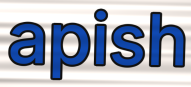
apish